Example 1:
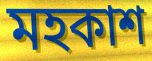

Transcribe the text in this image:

মহকাশ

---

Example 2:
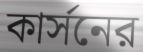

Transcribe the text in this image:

কার্সনের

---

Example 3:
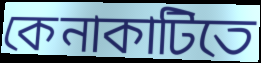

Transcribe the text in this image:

কেনাকাটিতে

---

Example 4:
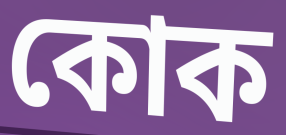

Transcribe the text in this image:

কোক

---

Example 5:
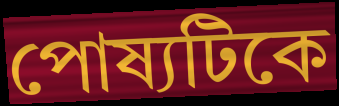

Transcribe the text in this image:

পোষ্যটিকে